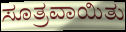
ಸೂತ್ರವಾಯಿತು